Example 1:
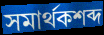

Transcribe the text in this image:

সমার্থকশব্দ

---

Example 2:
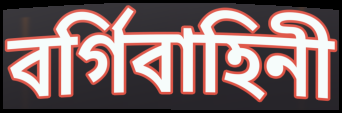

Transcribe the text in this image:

বর্গিবাহিনী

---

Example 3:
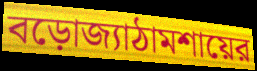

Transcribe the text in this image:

বড়োজ্যাঠামশায়ের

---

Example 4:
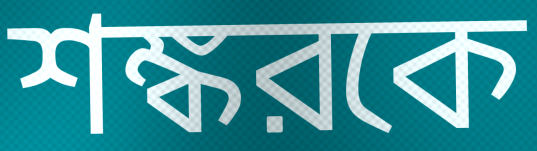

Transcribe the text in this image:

শঙ্করকে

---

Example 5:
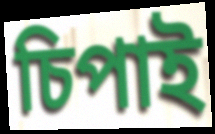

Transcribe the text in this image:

চিপাই